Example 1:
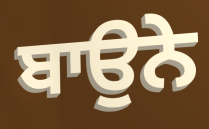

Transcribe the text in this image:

ਬਾਉਨੇ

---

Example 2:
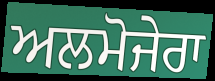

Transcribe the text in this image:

ਅਲਮੋਜੇਰਾ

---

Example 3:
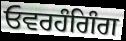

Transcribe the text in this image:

ਓਵਰਹੰਗਿੰਗ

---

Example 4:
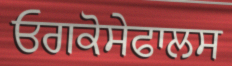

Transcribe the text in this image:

ਓਗਕੋਸੇਫਾਲਸ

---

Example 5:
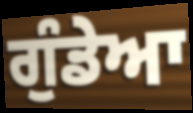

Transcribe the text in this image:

ਗੁੰਡੇਆ